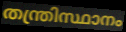
തന്ത്രിസ്ഥാനം